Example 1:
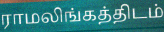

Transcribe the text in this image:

ராமலிங்கத்திடம்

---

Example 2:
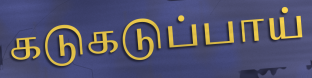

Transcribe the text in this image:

கடுகடுப்பாய்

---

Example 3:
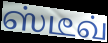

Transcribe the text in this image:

ஸ்டீவ்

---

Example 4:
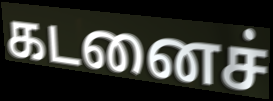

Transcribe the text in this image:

கடனைச்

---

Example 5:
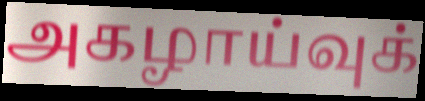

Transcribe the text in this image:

அகழாய்வுக்